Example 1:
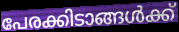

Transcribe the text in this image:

പേരക്കിടാങ്ങൾക്ക്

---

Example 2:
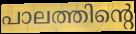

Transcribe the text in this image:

പാലത്തിന്റെ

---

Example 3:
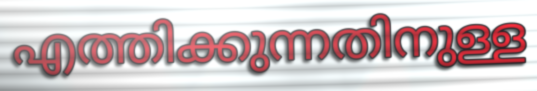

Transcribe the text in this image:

എത്തിക്കുന്നതിനുള്ള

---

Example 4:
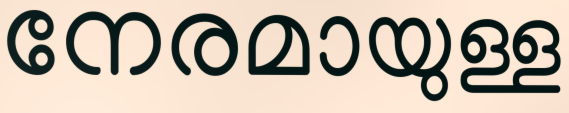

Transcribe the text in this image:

നേരമായുള്ള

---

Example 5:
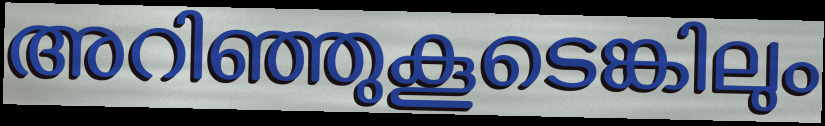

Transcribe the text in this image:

അറിഞ്ഞുകൂടെങ്കിലും